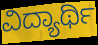
ವಿದ್ಯಾರ್ಥಿ